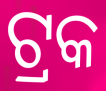
ଟ୍ରକ